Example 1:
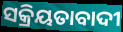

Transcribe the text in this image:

ସକ୍ରିୟତାବାଦୀ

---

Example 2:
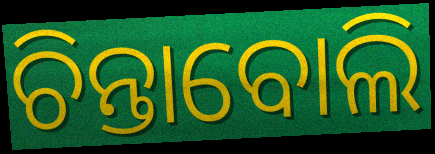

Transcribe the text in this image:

ଚିନ୍ତାବୋଲି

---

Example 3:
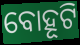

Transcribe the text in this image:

ବୋହୂଟି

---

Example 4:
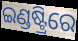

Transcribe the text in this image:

ଇଣ୍ଡଷ୍ଟ୍ରିରେ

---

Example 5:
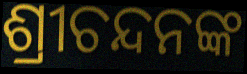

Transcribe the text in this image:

ଶ୍ରୀଚନ୍ଦନଙ୍କ